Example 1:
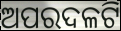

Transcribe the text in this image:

ଅପରଦଳଟି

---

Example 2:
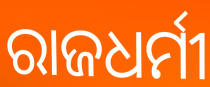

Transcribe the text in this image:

ରାଜଧର୍ମୀ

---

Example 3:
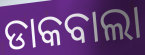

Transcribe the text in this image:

ଡାକବାଲା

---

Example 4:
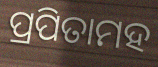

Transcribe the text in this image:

ପ୍ରପିତାମହ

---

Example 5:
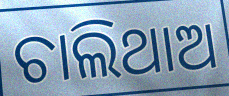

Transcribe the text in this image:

ଚାଲିଥାଅ